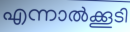
എന്നാൽക്കൂടി